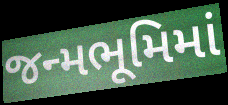
જન્મભૂમિમાં